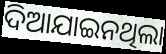
ଦିଆଯାଇନଥିଲା